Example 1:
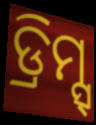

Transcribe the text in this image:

ଡ୍ରିମ୍ସ୍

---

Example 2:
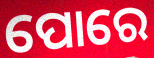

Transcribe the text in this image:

ପୋରେ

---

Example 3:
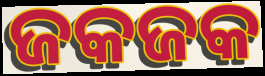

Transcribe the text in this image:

ଜକଜକ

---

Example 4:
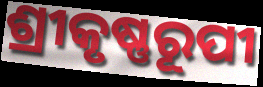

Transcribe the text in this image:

ଶ୍ରୀକୃଷ୍ଣରୂପୀ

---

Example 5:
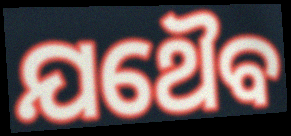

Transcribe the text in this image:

ଯଥୈବ